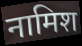
नामिश